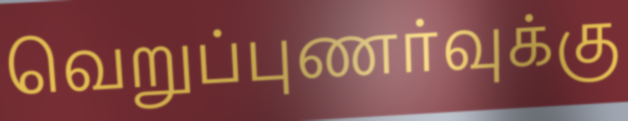
வெறுப்புணர்வுக்கு